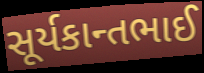
સૂર્યકાન્તભાઈ